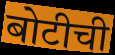
बोटीची